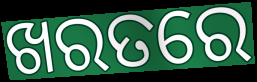
ଖରତରେ